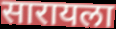
सारायला